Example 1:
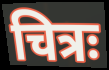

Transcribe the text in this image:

चित्रः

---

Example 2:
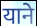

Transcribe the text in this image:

याने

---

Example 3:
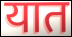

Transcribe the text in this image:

यात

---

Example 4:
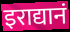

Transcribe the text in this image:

इराद्यानं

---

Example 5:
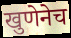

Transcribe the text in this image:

खुणेनेच